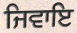
ਜਿਵਾਇ